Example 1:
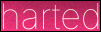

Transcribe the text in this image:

harted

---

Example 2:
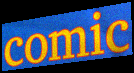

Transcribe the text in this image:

comic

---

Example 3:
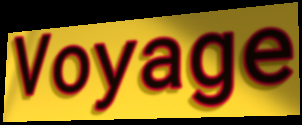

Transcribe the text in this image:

Voyage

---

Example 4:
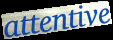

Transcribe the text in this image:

attentive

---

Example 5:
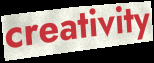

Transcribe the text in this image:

creativity